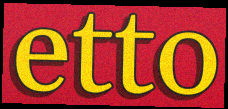
etto